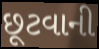
છૂટવાની